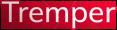
Tremper